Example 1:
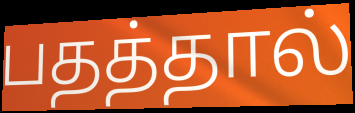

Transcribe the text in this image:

பதத்தால்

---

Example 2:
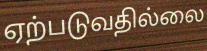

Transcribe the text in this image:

ஏற்படுவதில்லை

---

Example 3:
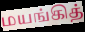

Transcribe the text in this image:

மயங்கித்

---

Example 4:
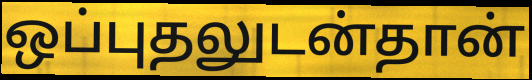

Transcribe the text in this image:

ஒப்புதலுடன்தான்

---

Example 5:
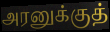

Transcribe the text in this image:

அரனுக்குத்